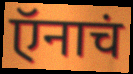
ऍनाचं